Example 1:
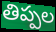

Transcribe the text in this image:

తిప్పల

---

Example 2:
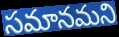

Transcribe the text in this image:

సమానమని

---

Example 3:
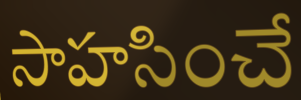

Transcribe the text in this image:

సాహసించే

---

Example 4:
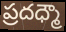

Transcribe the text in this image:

ప్రదధ్మౌ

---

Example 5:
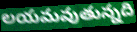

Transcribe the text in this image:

లయమవుతున్నది